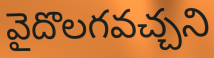
వైదొలగవచ్చని